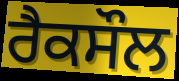
ਰੈਕਸੌਲ